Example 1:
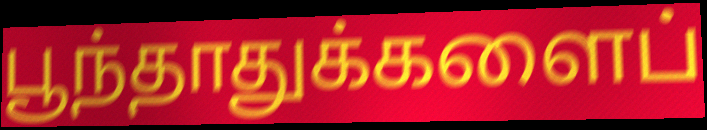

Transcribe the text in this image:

பூந்தாதுக்களைப்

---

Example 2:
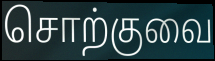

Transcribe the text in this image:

சொற்குவை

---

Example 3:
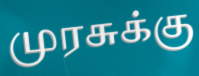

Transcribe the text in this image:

முரசுக்கு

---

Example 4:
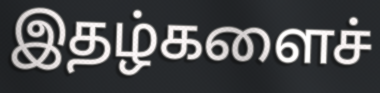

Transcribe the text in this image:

இதழ்களைச்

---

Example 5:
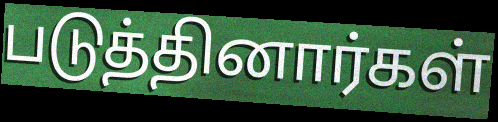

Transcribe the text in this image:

படுத்தினார்கள்